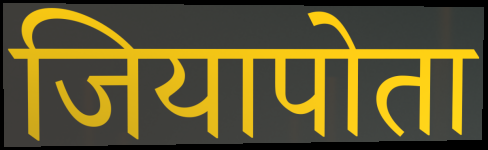
जियापोता